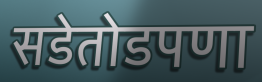
सडेतोडपणा